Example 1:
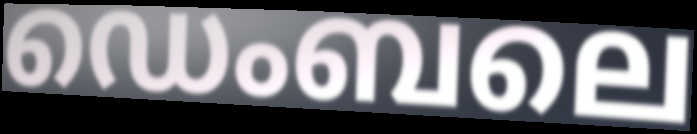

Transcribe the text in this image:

ഡെംബലെ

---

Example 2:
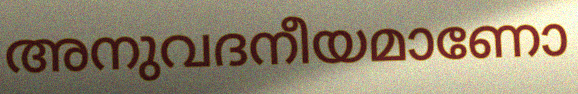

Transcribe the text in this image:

അനുവദനീയമാണോ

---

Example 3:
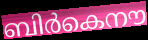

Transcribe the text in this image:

ബിർകെനൗ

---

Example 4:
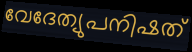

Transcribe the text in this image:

വേദേത്യുപനിഷത്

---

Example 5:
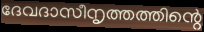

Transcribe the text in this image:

ദേവദാസീനൃത്തത്തിന്റെ